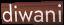
diwani